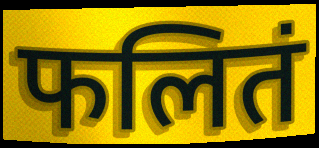
फलितं